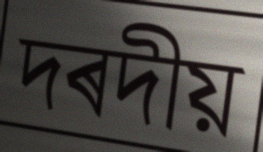
দৰদীয়